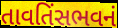
તાવતિંસભવનં